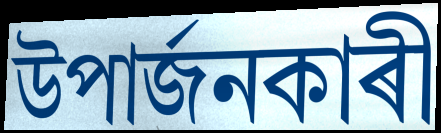
উপাৰ্জনকাৰী